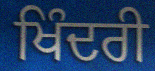
ਖਿੰਦਰੀ